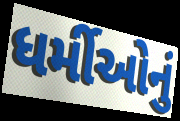
ધર્મીઓનું